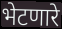
भेटणारे